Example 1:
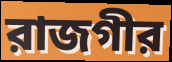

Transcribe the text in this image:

রাজগীর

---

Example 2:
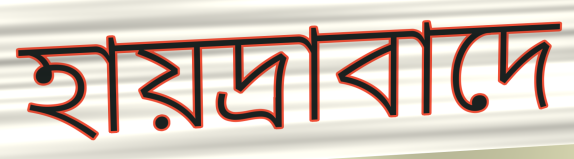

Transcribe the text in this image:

হায়দ্রাবাদে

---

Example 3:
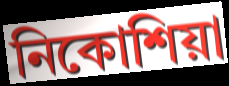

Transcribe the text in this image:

নিকোশিয়া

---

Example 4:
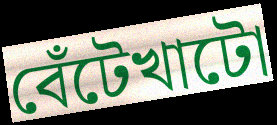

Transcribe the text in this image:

বেঁটেখাটো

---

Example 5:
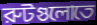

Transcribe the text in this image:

রুটগুলোতে